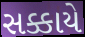
સક્કાયે